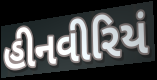
હીનવીરિયં